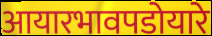
आयारभावपडोयारे